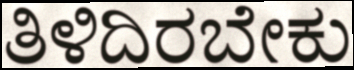
ತಿಳಿದಿರಬೇಕು